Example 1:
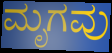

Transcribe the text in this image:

ಮೃಗವು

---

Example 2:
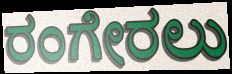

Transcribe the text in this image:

ರಂಗೇರಲು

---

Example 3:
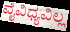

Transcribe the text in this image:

ವೈವಿಧ್ಯವಿಲ್ಲ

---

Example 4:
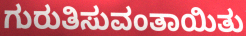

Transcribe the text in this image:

ಗುರುತಿಸುವಂತಾಯಿತು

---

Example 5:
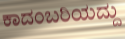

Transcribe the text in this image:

ಕಾದಂಬರಿಯದ್ದು